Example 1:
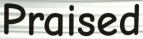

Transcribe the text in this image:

Praised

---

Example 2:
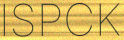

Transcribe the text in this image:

ISPCK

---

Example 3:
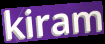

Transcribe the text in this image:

kiram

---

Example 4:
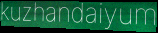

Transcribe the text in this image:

kuzhandaiyum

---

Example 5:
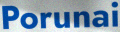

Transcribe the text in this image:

Porunai